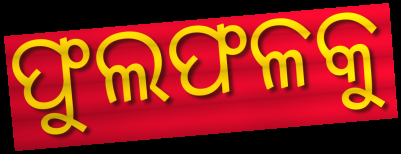
ଫୁଲଫଳକୁ